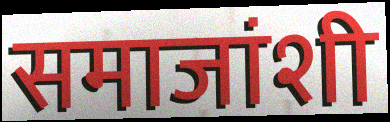
समाजांशी